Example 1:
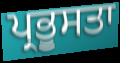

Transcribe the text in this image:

ਪ੍ਰਭੂਸਤਾ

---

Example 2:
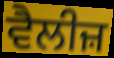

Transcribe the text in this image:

ਵੈਲੀਜ਼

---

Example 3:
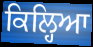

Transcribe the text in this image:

ਕਿਲ੍ਹਿਆ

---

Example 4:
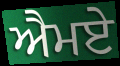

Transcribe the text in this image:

ਐਮਏ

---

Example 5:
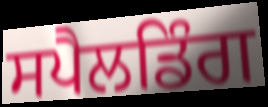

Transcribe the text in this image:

ਸਪੈਲਡਿੰਗ